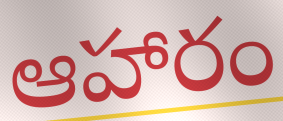
ఆహారం